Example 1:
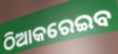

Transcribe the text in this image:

ଠିଆକରେଇବ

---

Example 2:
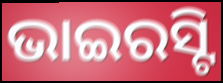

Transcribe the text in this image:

ଭାଇରସ୍ଟି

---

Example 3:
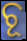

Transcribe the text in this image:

ଚୂ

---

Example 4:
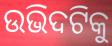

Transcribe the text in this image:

ଉଭିଦଟିକୁ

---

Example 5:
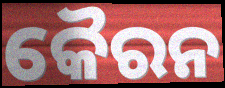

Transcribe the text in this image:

କୈରନ